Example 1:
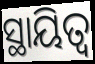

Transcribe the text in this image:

ସ୍ଥାୟିତ୍ୱ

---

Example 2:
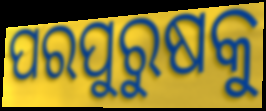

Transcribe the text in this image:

ପରପୁରୁଷକୁ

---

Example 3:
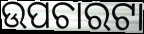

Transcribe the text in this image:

ଉପଚାରଟା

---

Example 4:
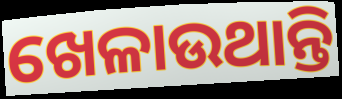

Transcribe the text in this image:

ଖେଳାଉଥାନ୍ତି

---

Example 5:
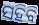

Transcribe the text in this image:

ସହିବି